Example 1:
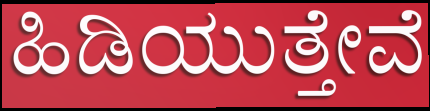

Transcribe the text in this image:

ಹಿಡಿಯುತ್ತೇವೆ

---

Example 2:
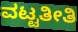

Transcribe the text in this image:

ವಟ್ಟತೀತಿ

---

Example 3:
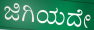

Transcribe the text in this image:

ಜಿಗಿಯದೇ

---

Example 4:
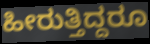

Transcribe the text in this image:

ಹೀರುತ್ತಿದ್ದರೂ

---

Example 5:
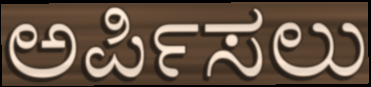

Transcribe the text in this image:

ಅರ್ಪಿಸಲು